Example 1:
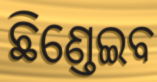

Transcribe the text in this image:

ଛିଣ୍ଡେଇବ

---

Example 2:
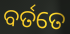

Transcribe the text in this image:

ବର୍ତତେ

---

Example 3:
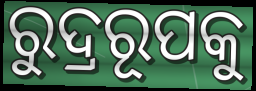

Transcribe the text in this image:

ରୁଦ୍ରରୂପକୁ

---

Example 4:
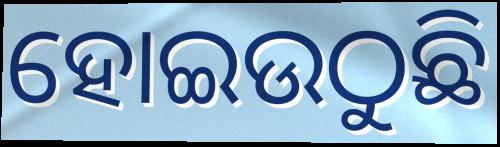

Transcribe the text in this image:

ହୋଇଉଠୁଛି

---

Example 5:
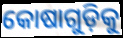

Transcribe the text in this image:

କୋଷାଗୁଡ଼ିକୁ